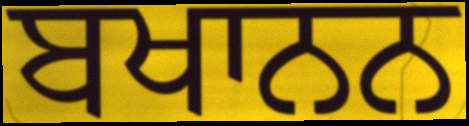
ਬਖਾਨਨ